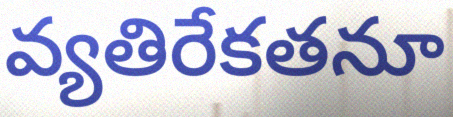
వ్యతిరేకతనూ